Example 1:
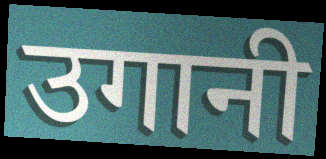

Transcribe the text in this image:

उगानी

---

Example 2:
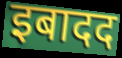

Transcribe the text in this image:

इबादद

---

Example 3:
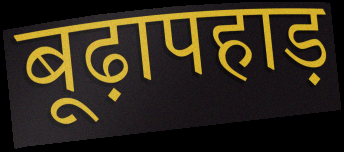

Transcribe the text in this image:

बूढ़ापहाड़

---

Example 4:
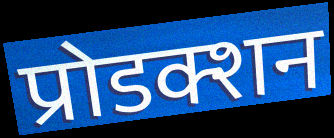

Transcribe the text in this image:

प्रोडक्शन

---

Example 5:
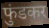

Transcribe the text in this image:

फुंडकर